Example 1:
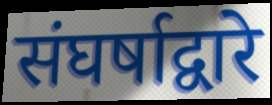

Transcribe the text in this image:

संघर्षाद्वारे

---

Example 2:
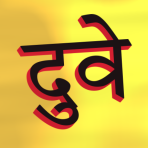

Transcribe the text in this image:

दुवे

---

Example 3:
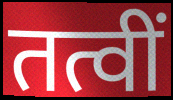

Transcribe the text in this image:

तत्वीं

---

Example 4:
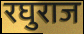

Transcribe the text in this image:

रघुराज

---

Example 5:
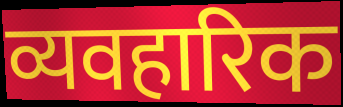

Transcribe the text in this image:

व्यवहारिक